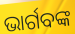
ଭାର୍ଗବଙ୍କ